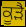
ਕੂੜੈ